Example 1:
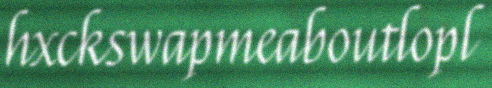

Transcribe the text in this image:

hxckswapmeaboutlopl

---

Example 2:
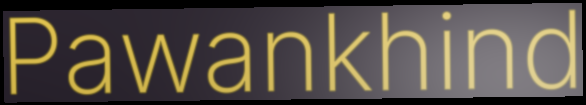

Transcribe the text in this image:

Pawankhind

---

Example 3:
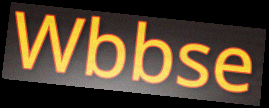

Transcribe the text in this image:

Wbbse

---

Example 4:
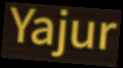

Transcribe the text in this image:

Yajur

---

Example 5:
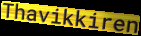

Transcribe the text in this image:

Thavikkiren